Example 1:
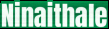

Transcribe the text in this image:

Ninaithale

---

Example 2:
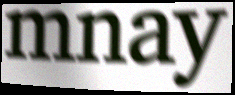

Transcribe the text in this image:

mnay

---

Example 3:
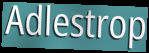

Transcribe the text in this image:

Adlestrop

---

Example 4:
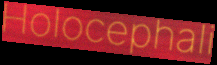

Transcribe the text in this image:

Holocephali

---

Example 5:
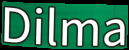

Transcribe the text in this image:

Dilma